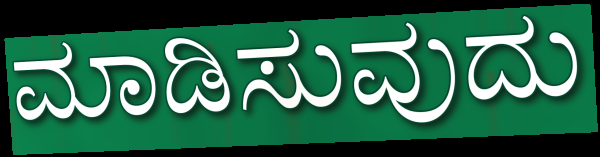
ಮಾಡಿಸುವುದು